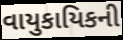
વાયુકાયિકની